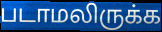
படாமலிருக்க